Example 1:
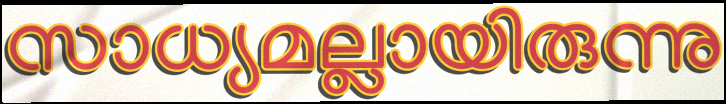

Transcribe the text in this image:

സാധ്യമല്ലായിരുന്നു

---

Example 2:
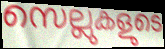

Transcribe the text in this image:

സെല്ലുകളുടെ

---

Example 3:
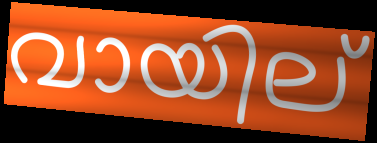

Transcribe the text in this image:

വായില്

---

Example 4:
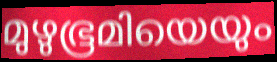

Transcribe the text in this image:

മുഴുഭൂമിയെയും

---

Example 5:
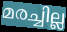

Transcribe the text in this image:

മരച്ചില്ല